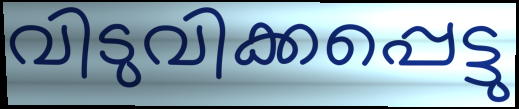
വിടുവിക്കപ്പെട്ടു